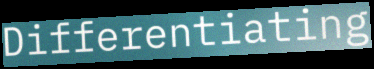
Differentiating